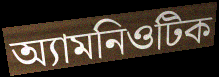
অ্যামনিওটিক